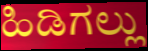
ಹಿಡಿಗಲ್ಲು